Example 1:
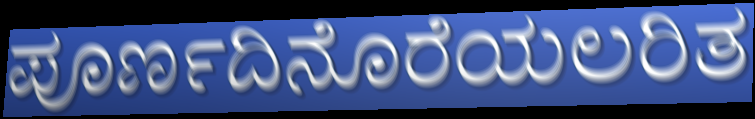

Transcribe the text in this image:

ಪೂರ್ಣದಿನೊರೆಯಲರಿತ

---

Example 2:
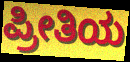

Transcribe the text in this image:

ಪ್ರೀತಿಯ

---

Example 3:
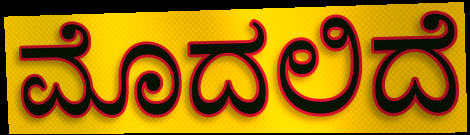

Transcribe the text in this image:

ಮೊದಲಿದೆ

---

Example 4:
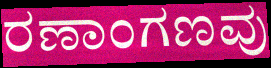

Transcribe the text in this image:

ರಣಾಂಗಣವು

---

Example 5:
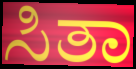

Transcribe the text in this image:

ಸಿತಾ